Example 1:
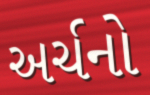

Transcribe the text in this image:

અર્ચનો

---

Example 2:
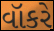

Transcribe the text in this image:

વૉકરે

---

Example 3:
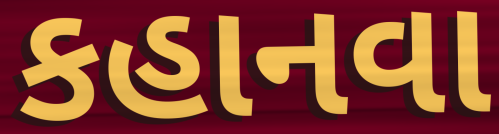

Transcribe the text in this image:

કહાનવા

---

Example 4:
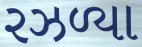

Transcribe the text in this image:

રઝળ્યા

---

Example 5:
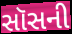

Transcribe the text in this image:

સૉસની